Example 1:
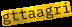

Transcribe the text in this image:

gttaagri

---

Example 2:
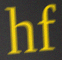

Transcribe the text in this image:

hf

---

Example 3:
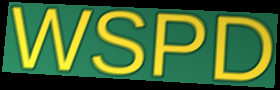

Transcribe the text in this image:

WSPD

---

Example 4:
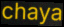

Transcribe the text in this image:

chaya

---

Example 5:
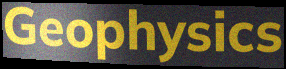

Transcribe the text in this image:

Geophysics